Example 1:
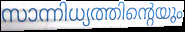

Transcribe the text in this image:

സാന്നിധ്യത്തിന്റെയും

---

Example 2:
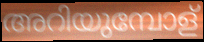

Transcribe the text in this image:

അറിയുമ്പോള്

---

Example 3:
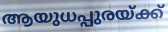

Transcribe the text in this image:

ആയുധപ്പുരയ്ക്ക്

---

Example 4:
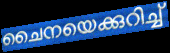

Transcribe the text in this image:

ചൈനയെക്കുറിച്ച്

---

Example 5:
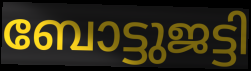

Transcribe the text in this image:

ബോട്ടുജട്ടി